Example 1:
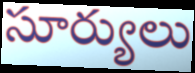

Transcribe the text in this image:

సూర్యులు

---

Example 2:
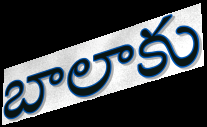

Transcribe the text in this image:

బాలాకు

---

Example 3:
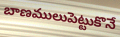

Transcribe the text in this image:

బాణములుపెట్టుకొనే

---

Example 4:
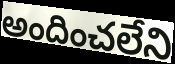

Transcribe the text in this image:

అందించలేని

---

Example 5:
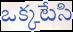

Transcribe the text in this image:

ఒక్కటేసి